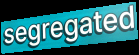
segregated